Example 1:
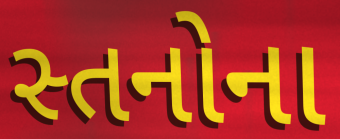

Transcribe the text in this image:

સ્તનોના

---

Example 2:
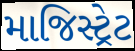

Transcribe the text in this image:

માજિસ્ટ્રેટ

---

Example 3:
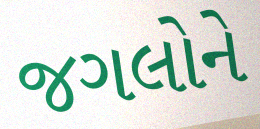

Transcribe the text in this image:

જગલોને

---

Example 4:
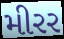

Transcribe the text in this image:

મીરર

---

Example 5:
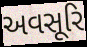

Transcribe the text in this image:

અવસૂરિ